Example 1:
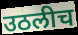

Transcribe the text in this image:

उठलीच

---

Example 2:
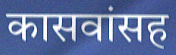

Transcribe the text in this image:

कासवांसह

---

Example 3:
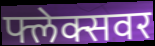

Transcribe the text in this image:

फ्लेक्सवर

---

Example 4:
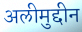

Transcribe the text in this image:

अलीमुद्दीन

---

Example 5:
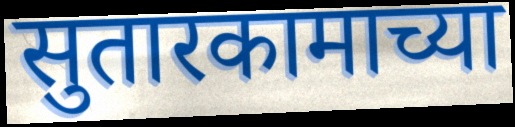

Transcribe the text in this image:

सुतारकामाच्या